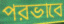
পরভাবে